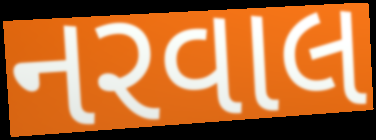
નરવાલ